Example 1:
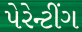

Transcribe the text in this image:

પેરેન્ટીંગ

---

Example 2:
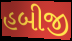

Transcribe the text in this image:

હબીજી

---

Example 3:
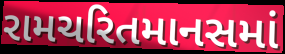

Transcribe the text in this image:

રામચરિતમાનસમાં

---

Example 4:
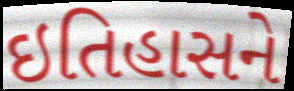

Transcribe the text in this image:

ઇતિહાસને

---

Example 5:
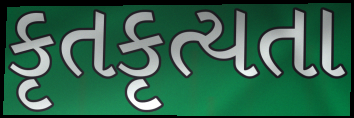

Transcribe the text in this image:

કૃતકૃત્યતા